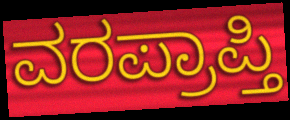
ವರಪ್ರಾಪ್ತಿ